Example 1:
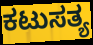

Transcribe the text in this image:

ಕಟುಸತ್ಯ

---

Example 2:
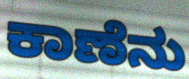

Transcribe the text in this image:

ಕಾಣೆನು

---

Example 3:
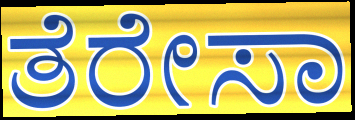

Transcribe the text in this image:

ತೆರೇಸಾ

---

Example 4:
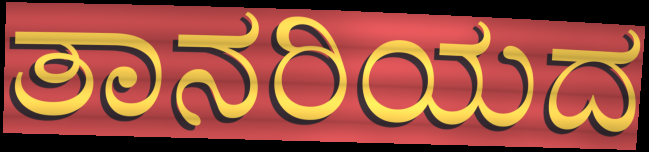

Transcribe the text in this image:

ತಾನರಿಯದ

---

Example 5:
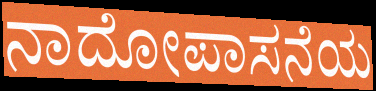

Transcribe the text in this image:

ನಾದೋಪಾಸನೆಯ